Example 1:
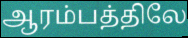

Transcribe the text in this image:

ஆரம்பத்திலே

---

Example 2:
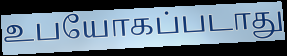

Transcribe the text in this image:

உபயோகப்படாது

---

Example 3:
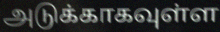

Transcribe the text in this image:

அடுக்காகவுள்ள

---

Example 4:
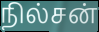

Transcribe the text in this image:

நில்சன்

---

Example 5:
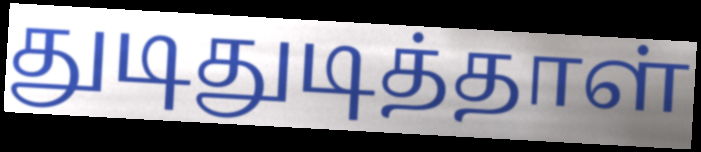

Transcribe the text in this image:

துடிதுடித்தாள்